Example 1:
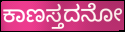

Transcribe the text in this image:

ಕಾಣಸ್ತದನೋ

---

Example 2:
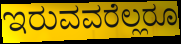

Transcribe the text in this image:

ಇರುವವರೆಲ್ಲರೂ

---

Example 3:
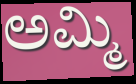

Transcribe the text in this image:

ಅಮ್ಮಿ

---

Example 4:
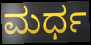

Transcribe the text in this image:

ಮರ್ಧ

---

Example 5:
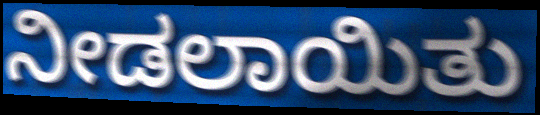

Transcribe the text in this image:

ನೀಡಲಾಯಿತು